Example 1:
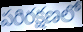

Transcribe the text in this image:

పరిరక్షణలో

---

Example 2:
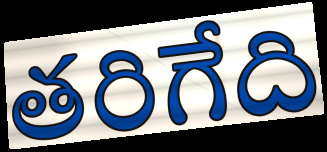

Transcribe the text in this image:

తరిగేది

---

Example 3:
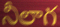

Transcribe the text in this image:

నీలాగ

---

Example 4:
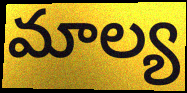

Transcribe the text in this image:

మాల్య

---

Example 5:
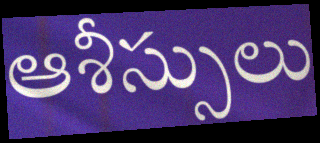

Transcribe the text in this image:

ఆశీస్సులు